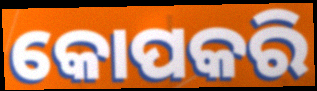
କୋପକରି